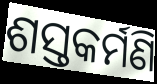
ଶସ୍ତକର୍ମଣି